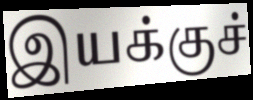
இயக்குச்